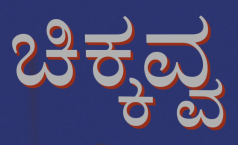
ಚಿಕ್ಕವ್ವ